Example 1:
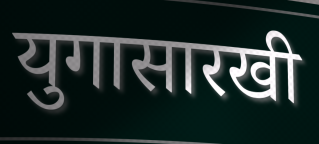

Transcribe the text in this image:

युगासारखी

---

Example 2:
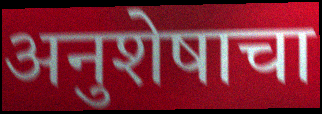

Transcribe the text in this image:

अनुशेषाचा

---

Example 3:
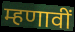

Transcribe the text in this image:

म्हणावीं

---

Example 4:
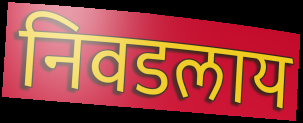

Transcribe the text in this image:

निवडलाय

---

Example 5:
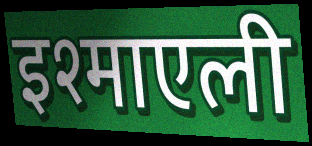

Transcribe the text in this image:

इश्माएली